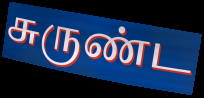
சுருண்ட